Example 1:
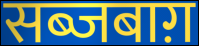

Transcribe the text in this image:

सब्जबाग़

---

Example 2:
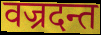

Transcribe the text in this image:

वज्रदन्त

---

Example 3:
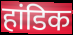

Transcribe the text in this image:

हांडिक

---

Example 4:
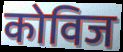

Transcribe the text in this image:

कोविज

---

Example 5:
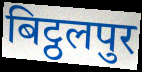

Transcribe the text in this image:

बिट्ठलपुर